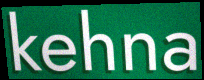
kehna